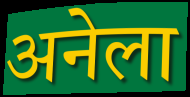
अनेला